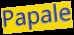
Papale